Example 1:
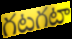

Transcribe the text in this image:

గటగటా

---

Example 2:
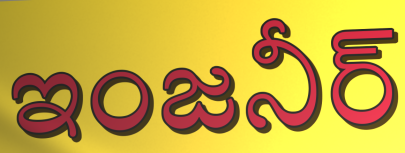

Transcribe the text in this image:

ఇంజనీర్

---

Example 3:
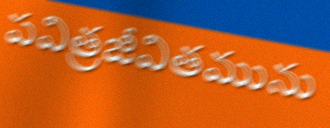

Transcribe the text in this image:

పవిత్రజీవితమును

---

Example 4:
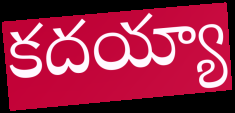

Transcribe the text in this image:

కదయ్యా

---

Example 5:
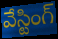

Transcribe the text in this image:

వేస్టింగ్